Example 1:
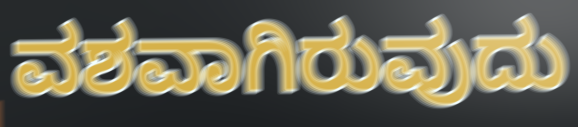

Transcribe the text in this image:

ವಶವಾಗಿರುವುದು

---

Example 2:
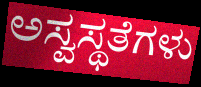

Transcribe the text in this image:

ಅಸ್ವಸ್ಥತೆಗಳು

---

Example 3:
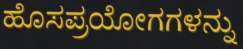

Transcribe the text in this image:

ಹೊಸಪ್ರಯೋಗಗಳನ್ನು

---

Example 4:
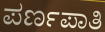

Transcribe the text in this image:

ಪರ್ಣಪಾತಿ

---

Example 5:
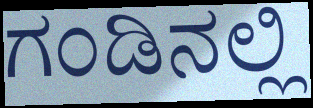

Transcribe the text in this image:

ಗಂಡಿನಲ್ಲಿ